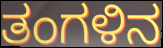
ತಂಗಳಿನ